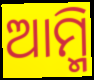
ଆମ୍ମି